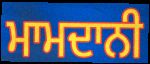
ਮਾਮਦਾਨੀ